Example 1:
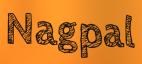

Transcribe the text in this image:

Nagpal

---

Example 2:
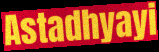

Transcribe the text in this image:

Astadhyayi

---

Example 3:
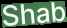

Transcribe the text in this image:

Shab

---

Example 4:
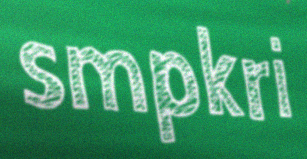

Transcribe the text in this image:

smpkri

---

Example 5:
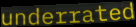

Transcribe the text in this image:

underrated